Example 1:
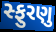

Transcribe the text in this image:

સ્ફુરણુ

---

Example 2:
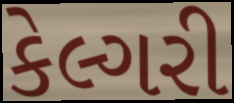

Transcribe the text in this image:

કેલ્ગરી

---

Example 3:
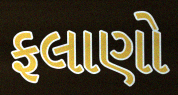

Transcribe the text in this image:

ફલાણો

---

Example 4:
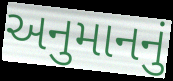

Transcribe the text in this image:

અનુમાનનું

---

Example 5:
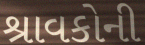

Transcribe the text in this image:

શ્રાવકોની